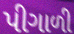
પીગાળી